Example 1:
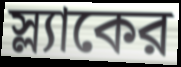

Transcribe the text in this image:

স্ল্যাকের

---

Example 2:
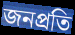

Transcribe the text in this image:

জনপ্রতি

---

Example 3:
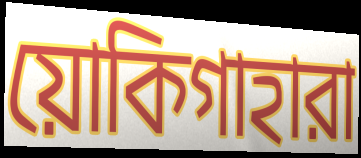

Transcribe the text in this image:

য়োকিগাহারা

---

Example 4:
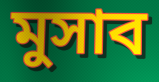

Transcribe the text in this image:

মুসাব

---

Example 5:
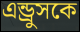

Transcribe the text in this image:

এন্ড্রুসকে